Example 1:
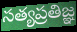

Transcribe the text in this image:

సత్యప్రతిజ్ఞ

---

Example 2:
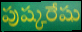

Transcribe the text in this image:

పుష్కరేషు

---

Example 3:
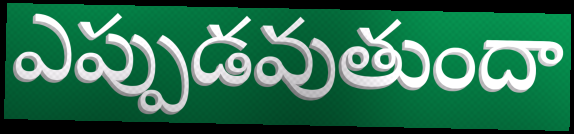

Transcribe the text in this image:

ఎప్పుడవుతుందా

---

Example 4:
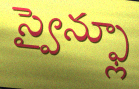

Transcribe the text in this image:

స్వైన్ఫ్లూ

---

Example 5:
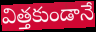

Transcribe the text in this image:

విత్తకుండానే